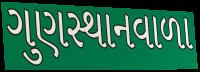
ગુણસ્થાનવાળા